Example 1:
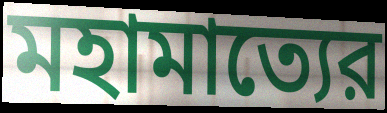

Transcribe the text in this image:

মহামাত্যের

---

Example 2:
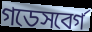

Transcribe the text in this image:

গডেসবের্গ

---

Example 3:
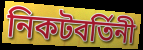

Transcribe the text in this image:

নিকটবর্তিনী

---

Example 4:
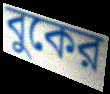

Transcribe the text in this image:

বুকের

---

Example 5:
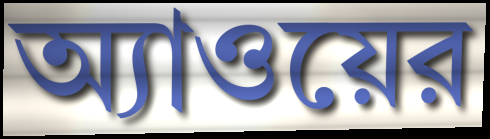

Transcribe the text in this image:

অ্যাওয়ের